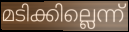
മടിക്കില്ലെന്ന്